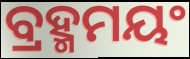
ବ୍ରହ୍ମମୟଂ